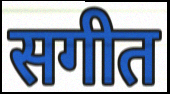
सगीत